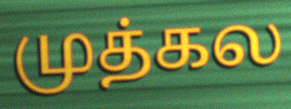
முத்கல